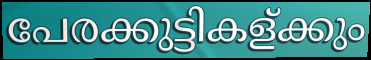
പേരക്കുട്ടികള്ക്കും